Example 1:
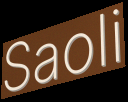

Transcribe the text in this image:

Saoli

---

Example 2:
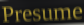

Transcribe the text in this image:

Presume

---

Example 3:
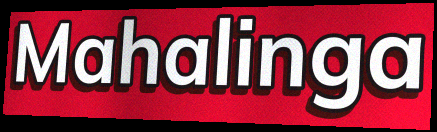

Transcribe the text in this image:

Mahalinga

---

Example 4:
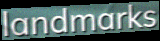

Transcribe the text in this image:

landmarks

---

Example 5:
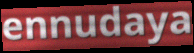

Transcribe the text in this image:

ennudaya